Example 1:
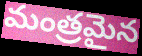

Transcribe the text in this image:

మంత్రమైన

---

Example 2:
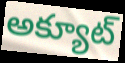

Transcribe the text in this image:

అక్యూట్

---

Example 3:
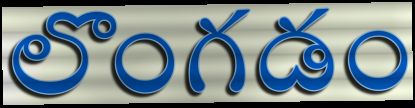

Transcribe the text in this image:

లొంగడం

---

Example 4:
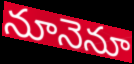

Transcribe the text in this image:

నూనెనూ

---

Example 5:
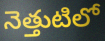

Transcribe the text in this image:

నెత్తుటిలో